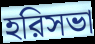
হরিসভা